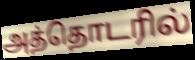
அத்தொடரில்